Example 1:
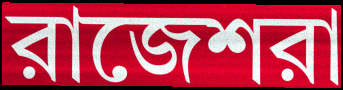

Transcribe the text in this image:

রাজেশরা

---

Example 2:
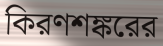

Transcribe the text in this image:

কিরণশঙ্করের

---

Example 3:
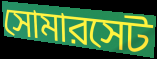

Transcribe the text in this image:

সোমারসেট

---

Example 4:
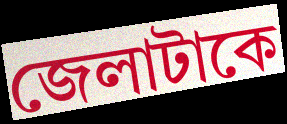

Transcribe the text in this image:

জেলাটাকে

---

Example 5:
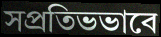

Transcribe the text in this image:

সপ্রতিভভাবে